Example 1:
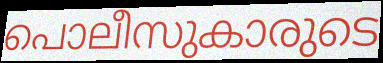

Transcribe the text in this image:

പൊലീസുകാരുടെ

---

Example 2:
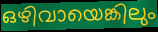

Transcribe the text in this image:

ഒഴിവായെങ്കിലും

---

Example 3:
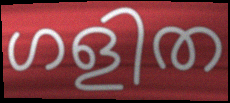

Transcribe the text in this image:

ഗളിത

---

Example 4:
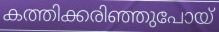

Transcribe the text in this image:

കത്തിക്കരിഞ്ഞുപോയ്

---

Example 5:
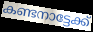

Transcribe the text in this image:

കണ്ടനാട്ടേക്ക്